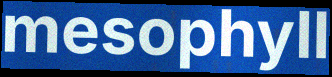
mesophyll